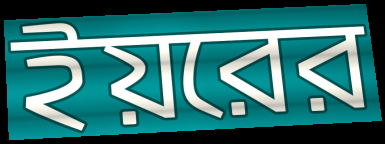
ইয়রের